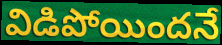
విడిపోయిందనే